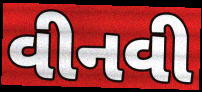
વીનવી